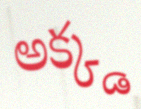
అక్క్డ